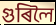
গুৰিলৈ